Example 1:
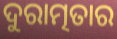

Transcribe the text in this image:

ଦୁରାତ୍ମତାର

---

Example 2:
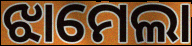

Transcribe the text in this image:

ଝାମେଲା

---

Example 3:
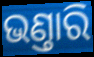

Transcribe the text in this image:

ଭଣ୍ତାରି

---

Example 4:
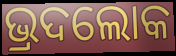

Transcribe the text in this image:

ଭ୍ରଦଲୋକ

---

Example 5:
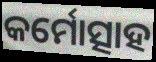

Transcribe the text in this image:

କର୍ମୋତ୍ସାହ